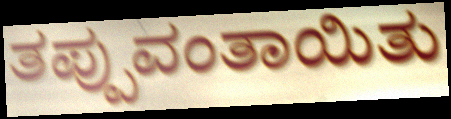
ತಪ್ಪುವಂತಾಯಿತು